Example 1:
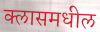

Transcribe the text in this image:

क्लासमधील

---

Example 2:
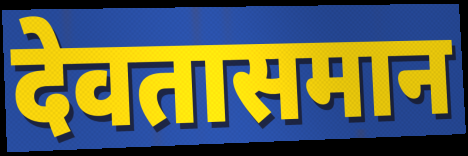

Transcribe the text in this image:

देवतासमान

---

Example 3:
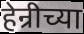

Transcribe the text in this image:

हेन्रीच्या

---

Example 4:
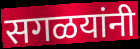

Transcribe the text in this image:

सगळयांनी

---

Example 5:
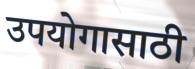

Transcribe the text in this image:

उपयोगासाठी